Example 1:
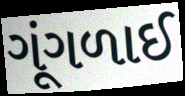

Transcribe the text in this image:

ગૂંગળાઈ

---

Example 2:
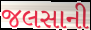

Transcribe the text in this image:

જલસાની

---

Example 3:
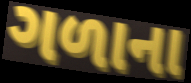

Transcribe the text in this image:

ગળાના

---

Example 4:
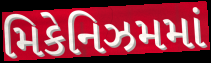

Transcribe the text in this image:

મિકેનિઝમમાં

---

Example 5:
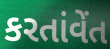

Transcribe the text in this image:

કરતાંવેંત